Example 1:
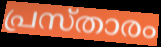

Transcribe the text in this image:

പ്രസ്താരം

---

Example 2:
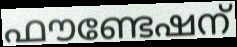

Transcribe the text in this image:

ഫൗണ്ടേഷന്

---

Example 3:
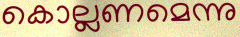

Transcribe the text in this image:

കൊല്ലണമെന്നു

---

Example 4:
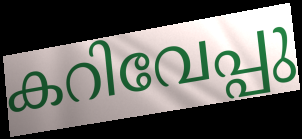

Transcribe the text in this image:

കറിവേപ്പു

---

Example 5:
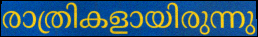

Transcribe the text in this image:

രാത്രികളായിരുന്നു